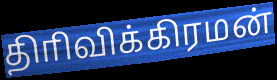
திரிவிக்கிரமன்